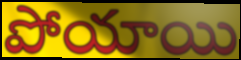
పోయాయి